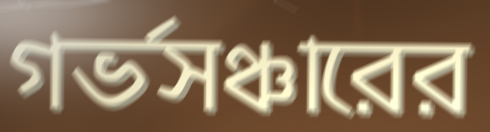
গর্ভসঞ্চারের